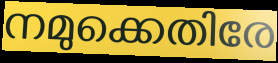
നമുക്കെതിരേ